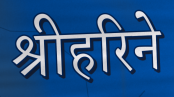
श्रीहरिने